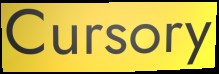
Cursory